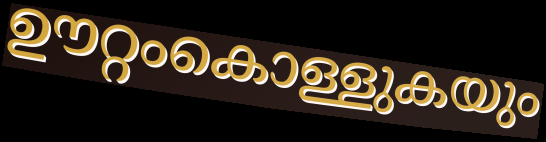
ഊറ്റംകൊള്ളുകയും